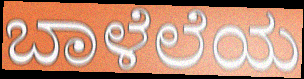
ಬಾಳೆಲೆಯ